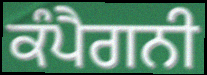
ਕੰਪੈਗਨੀ